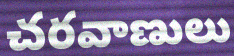
చరవాణులు